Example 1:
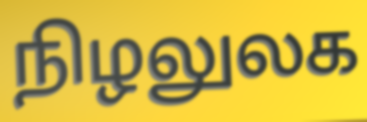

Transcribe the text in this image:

நிழலுலக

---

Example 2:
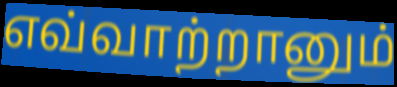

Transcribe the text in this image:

எவ்வாற்றானும்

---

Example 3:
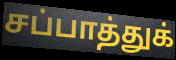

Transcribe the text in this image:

சப்பாத்துக்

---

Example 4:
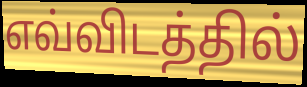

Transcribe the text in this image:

எவ்விடத்தில்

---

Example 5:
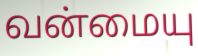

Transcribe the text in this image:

வன்மையு